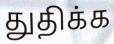
துதிக்க